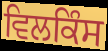
ਵਿਲਕਿੰਸ